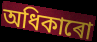
অধিকাৰো